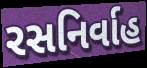
રસનિર્વાહ